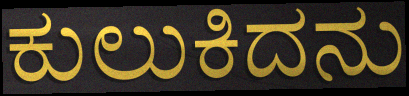
ಕುಲುಕಿದನು